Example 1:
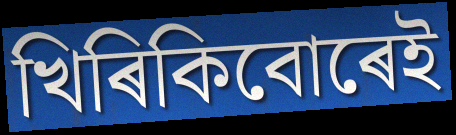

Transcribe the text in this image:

খিৰিকিবোৰেই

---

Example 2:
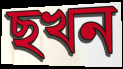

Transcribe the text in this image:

ছখন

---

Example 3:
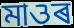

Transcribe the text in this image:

মাওৰ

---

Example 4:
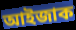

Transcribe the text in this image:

আইজাক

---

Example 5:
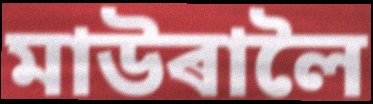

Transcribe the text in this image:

মাউৰালৈ